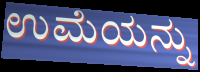
ಉಮೆಯನ್ನು